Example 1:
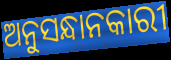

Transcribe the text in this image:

ଅନୁସନ୍ଧାନକାରୀ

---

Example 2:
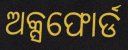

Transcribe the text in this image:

ଅକ୍ସଫୋର୍ଡ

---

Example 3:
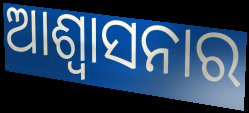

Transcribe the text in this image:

ଆଶ୍ୱାସନାର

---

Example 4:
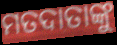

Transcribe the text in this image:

ମତଦାତାଙ୍କୁ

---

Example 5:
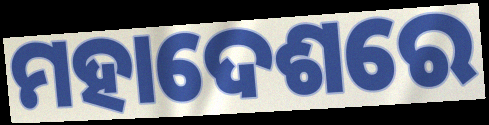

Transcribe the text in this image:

ମହାଦେଶରେ